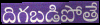
దిగబడిపోతే